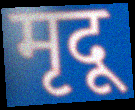
मृदू